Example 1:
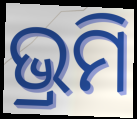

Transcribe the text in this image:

ଭ୍ରମି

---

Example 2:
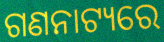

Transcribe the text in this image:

ଗଣନାଟ୍ୟରେ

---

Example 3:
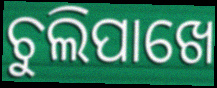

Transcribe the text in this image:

ଚୁଲିପାଖେ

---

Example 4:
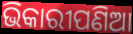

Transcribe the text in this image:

ଭିକାରୀପଣିଆ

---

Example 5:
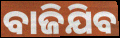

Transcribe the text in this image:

ବାଜିଯିବ